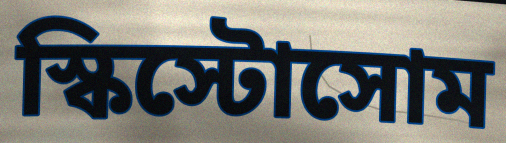
স্কিস্টোসোম